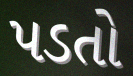
પડતો